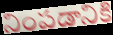
నింపడానికి